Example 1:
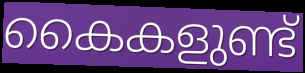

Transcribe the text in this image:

കൈകളുണ്ട്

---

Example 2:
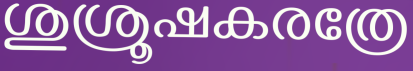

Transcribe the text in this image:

ശുശ്രൂഷകരത്രേ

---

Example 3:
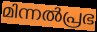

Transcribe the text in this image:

മിന്നൽപ്രഭ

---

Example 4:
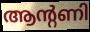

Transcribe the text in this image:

ആന്റണി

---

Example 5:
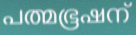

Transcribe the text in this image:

പത്മഭൂഷന്